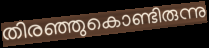
തിരഞ്ഞുകൊണ്ടിരുന്നു